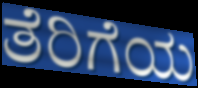
ತೆರಿಗೆಯ